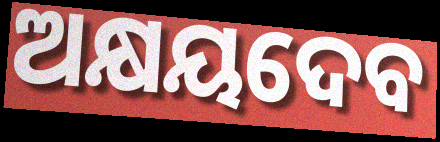
ଅକ୍ଷୟଦେବ